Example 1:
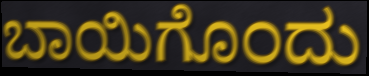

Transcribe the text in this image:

ಬಾಯಿಗೊಂದು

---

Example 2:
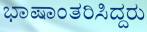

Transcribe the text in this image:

ಭಾಷಾಂತರಿಸಿದ್ದರು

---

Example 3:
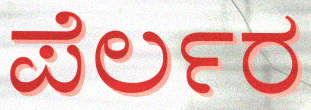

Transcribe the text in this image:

ಪೆರ್ಲರ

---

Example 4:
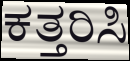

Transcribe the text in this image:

ಕತ್ತರಿಸಿ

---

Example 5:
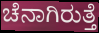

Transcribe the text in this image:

ಚೆನಾಗಿರುತ್ತೆ